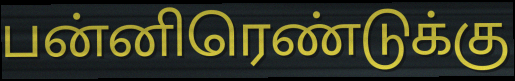
பன்னிரெண்டுக்கு